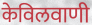
केविलवाणी